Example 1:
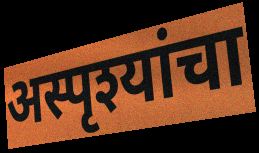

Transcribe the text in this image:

अस्पृश्यांचा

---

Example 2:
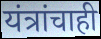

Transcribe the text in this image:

यंत्रांचाही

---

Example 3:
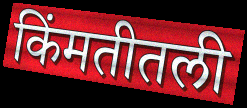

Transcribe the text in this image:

किंमतीतली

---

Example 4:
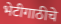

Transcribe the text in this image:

भेटीगाठीचे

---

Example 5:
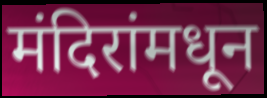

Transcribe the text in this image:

मंदिरांमधून